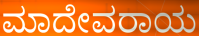
ಮಾದೇವರಾಯ